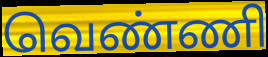
வெண்ணி